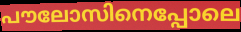
പൗലോസിനെപ്പോലെ